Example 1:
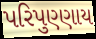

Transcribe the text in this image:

પરિપુણ્ણાય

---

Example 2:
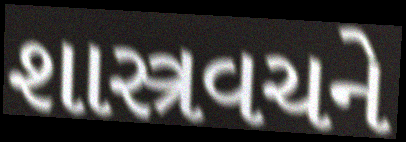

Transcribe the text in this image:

શાસ્ત્રવચને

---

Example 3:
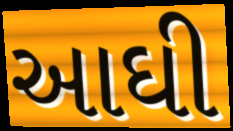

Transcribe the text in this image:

આઘી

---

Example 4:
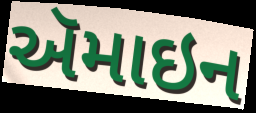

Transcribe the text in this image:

ઍમાઇન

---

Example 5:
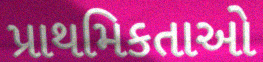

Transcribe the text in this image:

પ્રાથમિકતાઓ